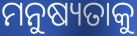
ମନୁଷ୍ୟତାକୁ